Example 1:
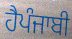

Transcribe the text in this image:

ਹੈਪੰਜਾਬੀ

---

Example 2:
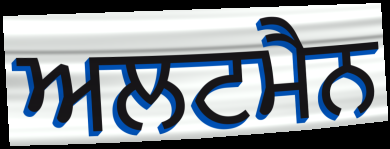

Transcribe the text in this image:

ਅਲਟਮੈਨ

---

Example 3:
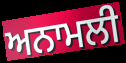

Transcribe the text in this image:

ਅਨਾਮਲੀ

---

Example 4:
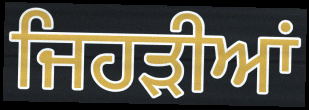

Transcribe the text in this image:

ਜਿਹੜੀਆਂ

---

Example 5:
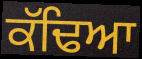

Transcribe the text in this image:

ਕੱਢਿਆ